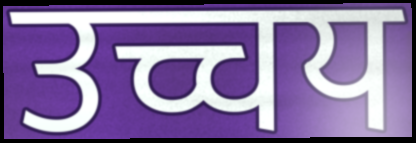
उच्चय